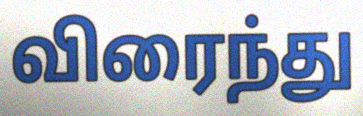
விரைந்து